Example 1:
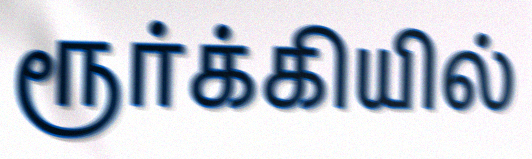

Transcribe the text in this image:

ரூர்க்கியில்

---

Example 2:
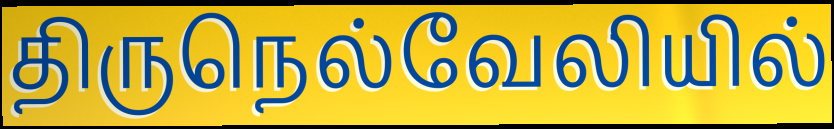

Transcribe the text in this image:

திருநெல்வேலியில்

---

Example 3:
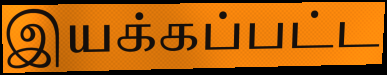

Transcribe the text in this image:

இயக்கப்பட்ட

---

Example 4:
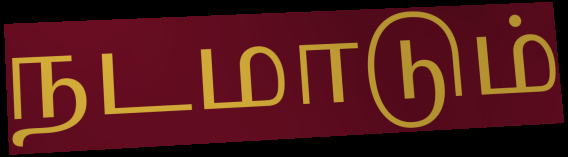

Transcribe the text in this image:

நடமாடும்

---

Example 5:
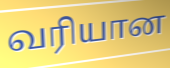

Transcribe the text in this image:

வரியான